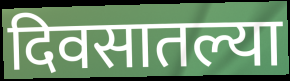
दिवसातल्या